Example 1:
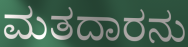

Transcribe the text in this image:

ಮತದಾರನು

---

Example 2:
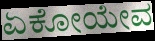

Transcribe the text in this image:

ಏಕೋಯೇವ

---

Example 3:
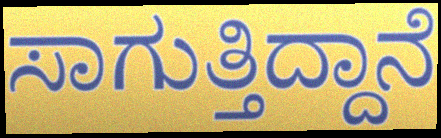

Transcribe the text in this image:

ಸಾಗುತ್ತಿದ್ದಾನೆ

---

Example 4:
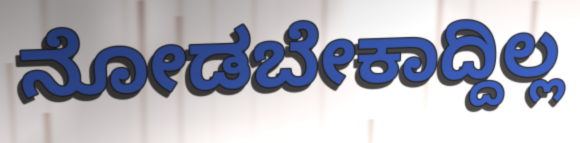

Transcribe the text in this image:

ನೋಡಬೇಕಾದ್ದಿಲ್ಲ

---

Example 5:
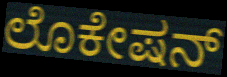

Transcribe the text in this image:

ಲೊಕೇಷನ್